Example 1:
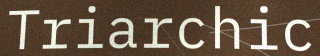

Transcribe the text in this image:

Triarchic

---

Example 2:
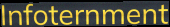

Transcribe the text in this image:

Infoternment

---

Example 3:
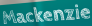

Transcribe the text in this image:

Mackenzie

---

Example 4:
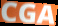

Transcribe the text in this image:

CGA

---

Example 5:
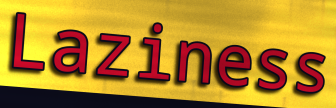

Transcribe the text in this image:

Laziness